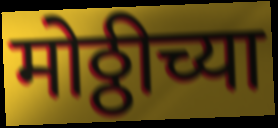
मोठ्ठीच्या